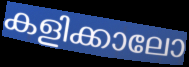
കളിക്കാലോ